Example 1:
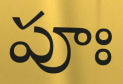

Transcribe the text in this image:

పూః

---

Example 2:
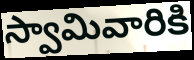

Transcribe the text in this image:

స్వామివారికి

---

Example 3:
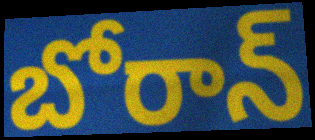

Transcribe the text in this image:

బోరాన్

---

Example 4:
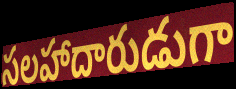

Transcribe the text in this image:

సలహాదారుడుగా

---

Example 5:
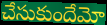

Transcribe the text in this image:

చేసుకుందేమో